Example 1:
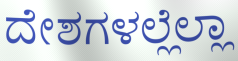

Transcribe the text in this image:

ದೇಶಗಳಲ್ಲೆಲ್ಲಾ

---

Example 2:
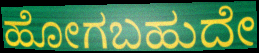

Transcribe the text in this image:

ಹೋಗಬಹುದೇ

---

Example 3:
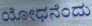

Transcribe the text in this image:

ಯೋಧನೆಂದು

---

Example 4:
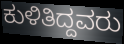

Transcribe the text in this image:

ಕುಳಿತಿದ್ದವರು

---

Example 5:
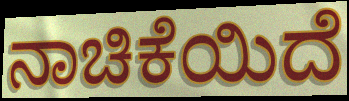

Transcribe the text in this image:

ನಾಚಿಕೆಯಿದೆ